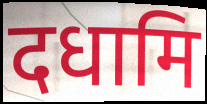
दधामि